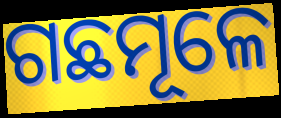
ଗଛମୂଳେ